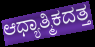
ಆಧ್ಯಾತ್ಮಿಕದತ್ತ